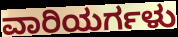
ವಾರಿಯರ್ಗಳು